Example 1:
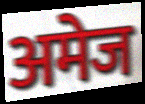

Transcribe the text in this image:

अमेज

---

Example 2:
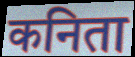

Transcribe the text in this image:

कनिता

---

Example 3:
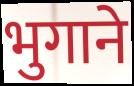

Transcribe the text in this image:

भुगाने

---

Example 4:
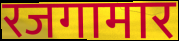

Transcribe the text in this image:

रजगामार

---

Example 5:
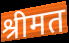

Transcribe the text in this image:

श्रीमत